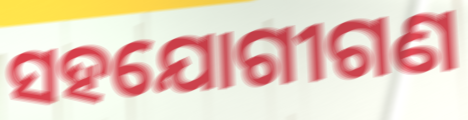
ସହଯୋଗୀଗଣ